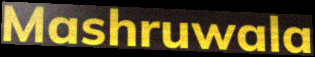
Mashruwala